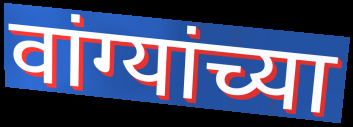
वांग्यांच्या